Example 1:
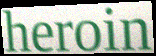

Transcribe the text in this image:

heroin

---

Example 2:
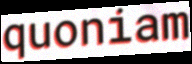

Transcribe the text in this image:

quoniam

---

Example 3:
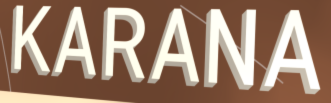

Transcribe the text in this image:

KARANA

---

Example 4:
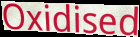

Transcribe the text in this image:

Oxidised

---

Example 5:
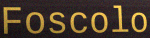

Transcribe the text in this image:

Foscolo